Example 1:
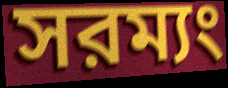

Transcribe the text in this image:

সরম্যং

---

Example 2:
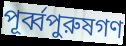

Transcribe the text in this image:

পূর্ব্বপুরুষগণ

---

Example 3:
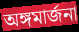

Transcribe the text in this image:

অঙ্গমার্জনা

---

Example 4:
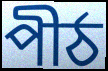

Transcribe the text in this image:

পীঠ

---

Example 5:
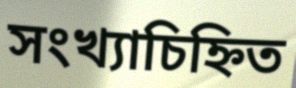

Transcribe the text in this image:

সংখ্যাচিহ্নিত